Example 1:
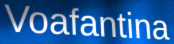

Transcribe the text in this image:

Voafantina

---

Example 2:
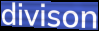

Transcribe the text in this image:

divison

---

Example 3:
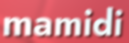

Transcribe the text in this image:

mamidi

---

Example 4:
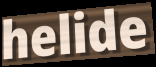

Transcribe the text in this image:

helide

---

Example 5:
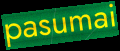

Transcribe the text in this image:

pasumai